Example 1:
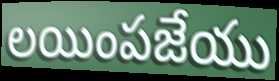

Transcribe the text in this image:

లయింపజేయు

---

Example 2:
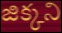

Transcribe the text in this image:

జిక్కని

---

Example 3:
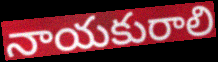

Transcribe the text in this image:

నాయకురాలి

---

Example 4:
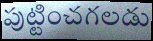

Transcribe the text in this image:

పుట్టించగలడు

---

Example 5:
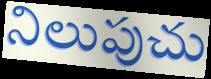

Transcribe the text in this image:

నిలుపుచు